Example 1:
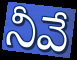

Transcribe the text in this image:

నీవే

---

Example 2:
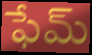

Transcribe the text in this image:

ఫేమ్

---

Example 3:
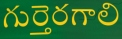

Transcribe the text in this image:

గుర్తెరగాలి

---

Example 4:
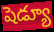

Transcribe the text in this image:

షెడ్యూ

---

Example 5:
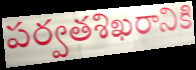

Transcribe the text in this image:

పర్వతశిఖరానికి